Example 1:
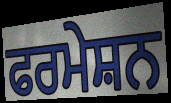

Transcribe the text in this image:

ਫਰਮੇਸ਼ਨ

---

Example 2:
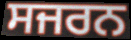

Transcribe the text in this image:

ਸਜਰਨ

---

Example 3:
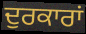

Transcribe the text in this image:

ਦੁਰਕਾਰਾਂ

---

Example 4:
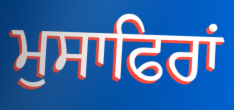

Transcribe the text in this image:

ਮੁਸਾਫਿਰਾਂ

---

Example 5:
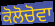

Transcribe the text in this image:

ਕੋਲੋਚੋਵਾ